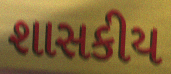
શાસકીય